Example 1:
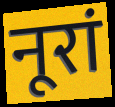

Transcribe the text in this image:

नूरां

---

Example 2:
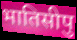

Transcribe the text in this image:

भातिसीपु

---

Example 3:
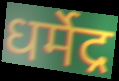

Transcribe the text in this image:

धर्मेद्र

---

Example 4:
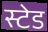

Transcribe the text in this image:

स्टेड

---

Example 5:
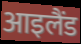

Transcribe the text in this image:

आइलैंड